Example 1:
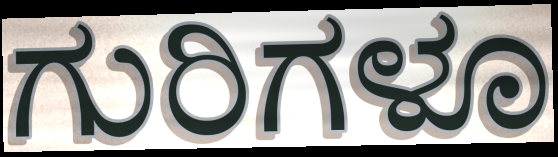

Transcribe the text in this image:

ಗುರಿಗಳೂ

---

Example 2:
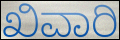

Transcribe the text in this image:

ಖಿವಾರಿ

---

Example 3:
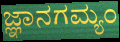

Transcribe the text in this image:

ಜ್ಞಾನಗಮ್ಯಂ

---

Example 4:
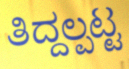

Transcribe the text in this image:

ತಿದ್ದಲ್ಪಟ್ಟ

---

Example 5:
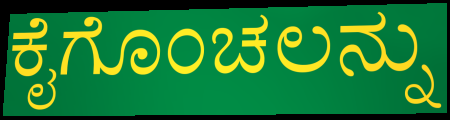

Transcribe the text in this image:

ಕೈಗೊಂಚಲನ್ನು